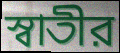
স্বাতীর